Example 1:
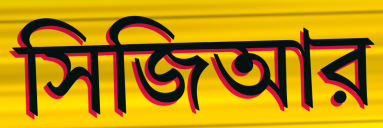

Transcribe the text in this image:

সিজিআর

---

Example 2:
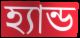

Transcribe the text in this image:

হ্যান্ড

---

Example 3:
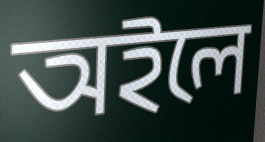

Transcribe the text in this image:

অইলে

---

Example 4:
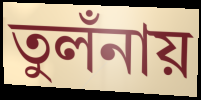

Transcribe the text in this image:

তুলঁনায়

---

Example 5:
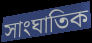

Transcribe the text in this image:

সাংঘাতিক